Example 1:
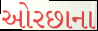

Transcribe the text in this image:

ઓરછાના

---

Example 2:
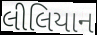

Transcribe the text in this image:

લીલિયાન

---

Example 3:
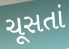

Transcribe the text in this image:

ચૂસતાં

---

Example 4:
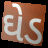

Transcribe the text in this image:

ઘેડ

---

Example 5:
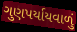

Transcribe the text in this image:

ગુણપર્યાયવાળું